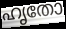
ഹൃതോ